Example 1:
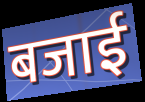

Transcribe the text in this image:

बजाई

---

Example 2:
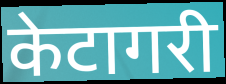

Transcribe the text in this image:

केटागरी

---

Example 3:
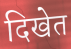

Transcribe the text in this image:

दिखेत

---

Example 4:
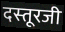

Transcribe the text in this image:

दस्तूरजी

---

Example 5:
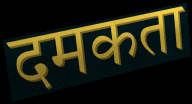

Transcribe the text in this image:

दमकता